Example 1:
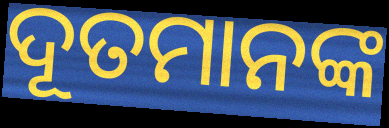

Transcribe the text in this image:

ଦୂତମାନଙ୍କ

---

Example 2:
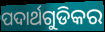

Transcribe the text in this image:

ପଦାର୍ଥଗୁଡିକର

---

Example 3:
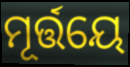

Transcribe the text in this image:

ମୂର୍ତ୍ତୟେ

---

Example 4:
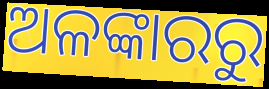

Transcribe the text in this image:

ଅଳଙ୍କାରରୁ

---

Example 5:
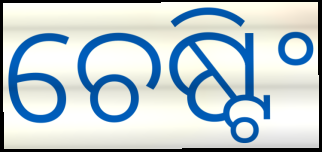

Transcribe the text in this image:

ଚେଷ୍ଟିଂ